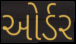
ઓર્ડર